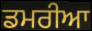
ਡਮਰੀਆ